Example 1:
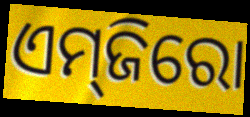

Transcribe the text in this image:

ଏମ୍‌ଜିରୋ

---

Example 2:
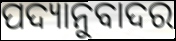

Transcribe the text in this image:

ପଦ୍ୟାନୁବାଦର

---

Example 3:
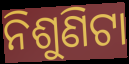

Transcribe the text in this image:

ନିଶୁଣିଟା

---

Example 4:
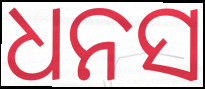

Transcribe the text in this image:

ଧନସ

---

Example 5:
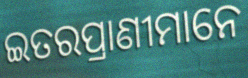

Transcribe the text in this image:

ଇତରପ୍ରାଣୀମାନେ